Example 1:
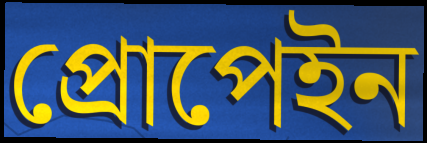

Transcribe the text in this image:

প্রোপেইন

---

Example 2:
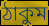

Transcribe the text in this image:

ঠাকুম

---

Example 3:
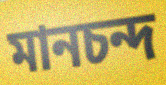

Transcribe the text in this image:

মানচন্দ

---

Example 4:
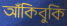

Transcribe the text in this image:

আঁকিবুকি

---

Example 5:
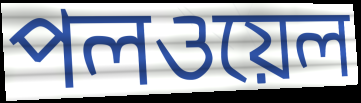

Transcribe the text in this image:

পলওয়েল